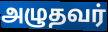
அழுதவர்